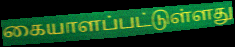
கையாளப்பட்டுள்ளது